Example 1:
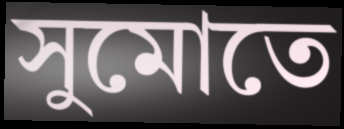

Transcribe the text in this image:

সুমোতে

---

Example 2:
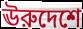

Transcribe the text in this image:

ঊরুদেশে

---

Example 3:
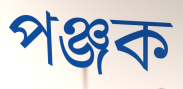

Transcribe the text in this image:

পঞ্জক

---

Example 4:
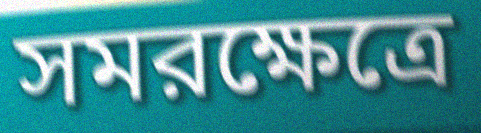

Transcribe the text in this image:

সমরক্ষেত্রে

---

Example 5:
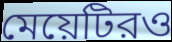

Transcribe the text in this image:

মেয়েটিরও